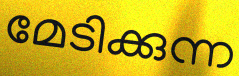
മേടിക്കുന്ന